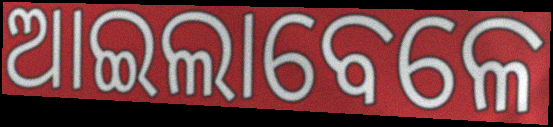
ଆଇଲାବେଳେ